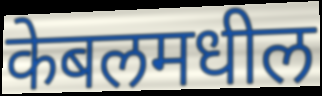
केबलमधील